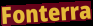
Fonterra